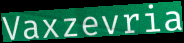
Vaxzevria